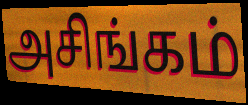
அசிங்கம்